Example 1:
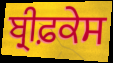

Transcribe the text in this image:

ਬ੍ਰੀਫ਼ਕੇਸ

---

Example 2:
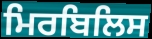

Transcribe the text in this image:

ਮਿਰਬਿਲਿਸ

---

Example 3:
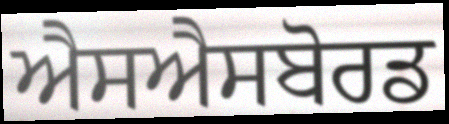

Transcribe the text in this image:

ਐਸਐਸਬੋਰਡ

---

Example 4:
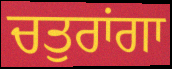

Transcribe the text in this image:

ਚਤੁਰਾਂਗਾ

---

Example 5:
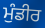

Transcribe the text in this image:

ਮੁੰਡੀਰ